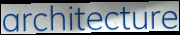
architecture